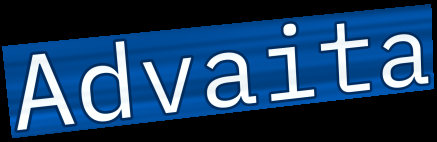
Advaita